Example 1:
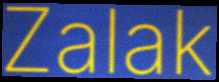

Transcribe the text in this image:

Zalak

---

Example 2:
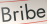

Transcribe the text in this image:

Bribe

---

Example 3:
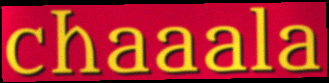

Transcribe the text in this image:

chaaala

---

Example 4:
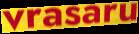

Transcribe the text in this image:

vrasaru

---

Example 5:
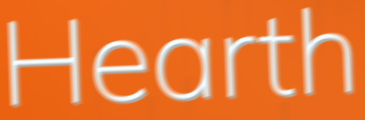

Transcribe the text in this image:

Hearth